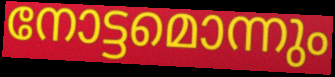
നോട്ടമൊന്നും